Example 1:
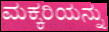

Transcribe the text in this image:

ಮಕ್ಕರಿಯನ್ನು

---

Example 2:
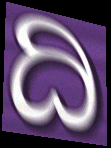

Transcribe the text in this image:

ದಿ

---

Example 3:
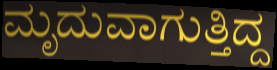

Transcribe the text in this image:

ಮೃದುವಾಗುತ್ತಿದ್ದ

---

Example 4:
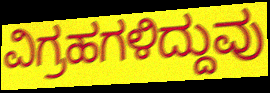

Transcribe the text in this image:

ವಿಗ್ರಹಗಳಿದ್ದುವು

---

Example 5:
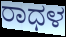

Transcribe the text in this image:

ರಾಧಳ